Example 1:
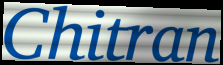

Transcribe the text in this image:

Chitran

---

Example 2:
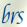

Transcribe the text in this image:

brs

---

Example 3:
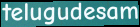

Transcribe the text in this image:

telugudesam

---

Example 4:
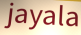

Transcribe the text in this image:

jayala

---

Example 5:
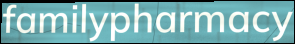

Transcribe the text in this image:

familypharmacy